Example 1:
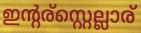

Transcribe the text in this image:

ഇന്റര്സ്റ്റെല്ലാര്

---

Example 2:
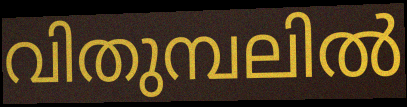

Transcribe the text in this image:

വിതുമ്പലിൽ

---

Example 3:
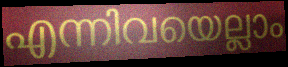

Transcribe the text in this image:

എന്നിവയെല്ലാം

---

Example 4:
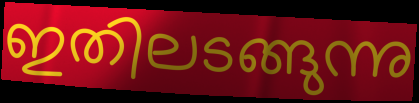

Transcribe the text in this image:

ഇതിലടങ്ങുന്നു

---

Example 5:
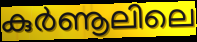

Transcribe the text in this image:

കുർണൂലിലെ